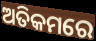
ଅତିକମରେ